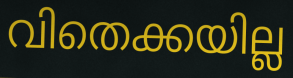
വിതെക്കയില്ല